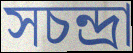
সচন্দ্রা